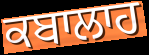
ਕਬਾਲਾਹ